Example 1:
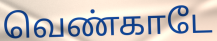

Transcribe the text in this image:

வெண்காடே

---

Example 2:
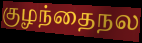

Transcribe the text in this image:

குழந்தைநல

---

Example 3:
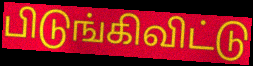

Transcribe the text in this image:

பிடுங்கிவிட்டு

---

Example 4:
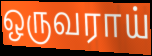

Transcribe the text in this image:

ஒருவராய்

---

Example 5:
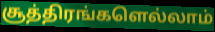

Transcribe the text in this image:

சூத்திரங்களெல்லாம்